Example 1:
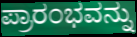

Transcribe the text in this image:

ಪ್ರಾರಂಭವನ್ನು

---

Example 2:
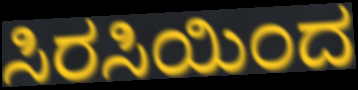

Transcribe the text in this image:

ಸಿರಸಿಯಿಂದ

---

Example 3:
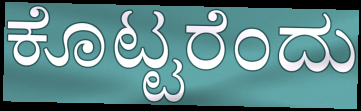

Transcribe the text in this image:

ಕೊಟ್ಟರೆಂದು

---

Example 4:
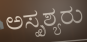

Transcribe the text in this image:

ಅಸ್ಪೃಶ್ಯರು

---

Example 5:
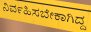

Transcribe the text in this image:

ನಿರ್ವಹಿಸಬೇಕಾಗಿದ್ದ